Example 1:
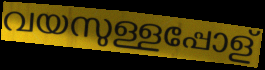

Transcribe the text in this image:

വയസുള്ളപ്പോള്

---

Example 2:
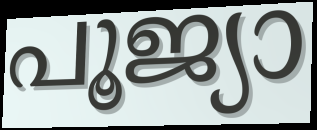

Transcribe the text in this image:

പൂജ്യാ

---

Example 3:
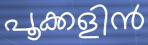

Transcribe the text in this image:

പൂക്കളിൻ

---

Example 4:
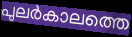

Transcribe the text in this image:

പുലർകാലത്തെ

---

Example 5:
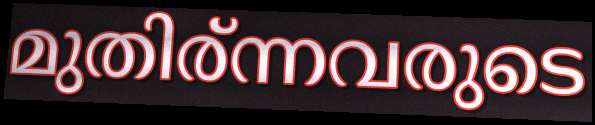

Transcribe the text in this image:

മുതിര്ന്നവരുടെ